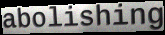
abolishing